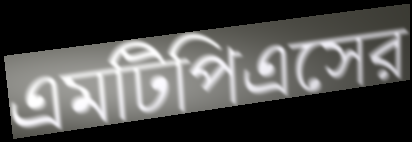
এমটিপিএসের